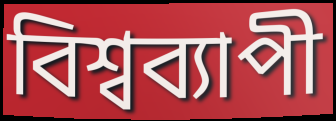
বিশ্বব্যাপী